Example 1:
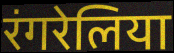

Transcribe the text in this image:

रंगरेलिया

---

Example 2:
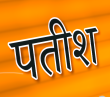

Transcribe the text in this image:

पतीश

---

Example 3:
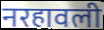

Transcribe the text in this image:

नरहावली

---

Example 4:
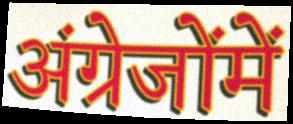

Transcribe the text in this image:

अंग्रेजोंमें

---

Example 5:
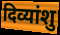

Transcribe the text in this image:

दिव्यांशु